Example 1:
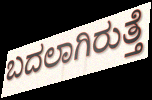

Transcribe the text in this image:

ಬದಲಾಗಿರುತ್ತೆ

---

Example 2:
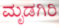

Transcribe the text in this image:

ಮೃಡಗಿರಿ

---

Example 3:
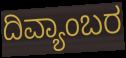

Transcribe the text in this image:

ದಿವ್ಯಾಂಬರ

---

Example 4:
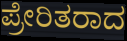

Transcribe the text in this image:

ಪ್ರೇರಿತರಾದ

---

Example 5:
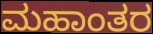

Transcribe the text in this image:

ಮಹಾಂತರ